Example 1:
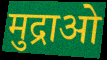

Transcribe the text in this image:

मुद्राओ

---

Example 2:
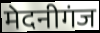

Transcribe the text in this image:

मेदनीगंज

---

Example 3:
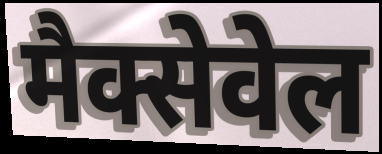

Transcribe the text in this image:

मैक्सेवेल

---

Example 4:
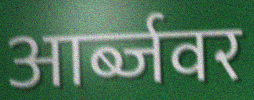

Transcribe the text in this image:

आर्ब्जवर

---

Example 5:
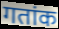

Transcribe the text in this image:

गतांक